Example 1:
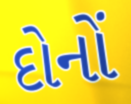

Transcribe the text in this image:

દોનોં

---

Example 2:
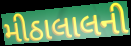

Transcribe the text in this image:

મીઠાલાલની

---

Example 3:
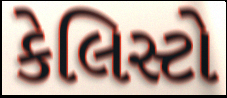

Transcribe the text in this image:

કેલિસ્ટો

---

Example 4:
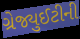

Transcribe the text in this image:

ગ્રેજ્યુઈટીની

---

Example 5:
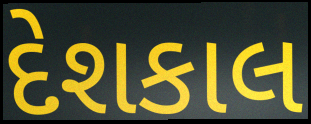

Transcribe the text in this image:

દેશકાલ